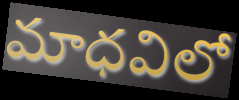
మాధవిలో